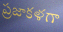
ప్రజాకళగా